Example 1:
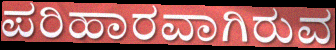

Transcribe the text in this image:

ಪರಿಹಾರವಾಗಿರುವ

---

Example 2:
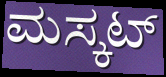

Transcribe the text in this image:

ಮಸ್ಕಟ್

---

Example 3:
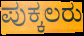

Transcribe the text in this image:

ಪುಕ್ಕಲರು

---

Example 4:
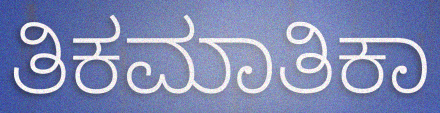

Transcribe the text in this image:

ತಿಕಮಾತಿಕಾ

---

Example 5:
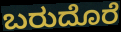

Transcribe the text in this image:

ಬರುದೊರೆ